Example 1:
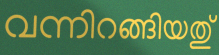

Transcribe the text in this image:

വന്നിറങ്ങിയതു്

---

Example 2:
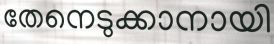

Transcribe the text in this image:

തേനെടുക്കാനായി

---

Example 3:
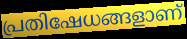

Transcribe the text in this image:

പ്രതിഷേധങ്ങളാണ്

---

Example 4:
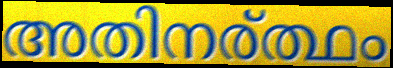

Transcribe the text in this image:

അതിനര്ത്ഥം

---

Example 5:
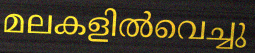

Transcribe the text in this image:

മലകളിൽവെച്ചു